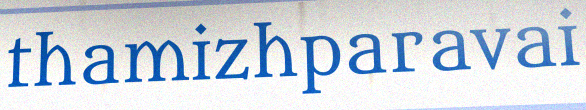
thamizhparavai